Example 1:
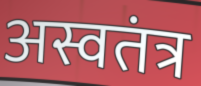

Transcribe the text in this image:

अस्वतंत्र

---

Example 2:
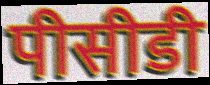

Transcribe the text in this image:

पीसीडी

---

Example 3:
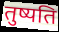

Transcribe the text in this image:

तुष्यति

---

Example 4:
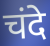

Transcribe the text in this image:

चंदे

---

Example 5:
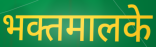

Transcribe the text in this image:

भक्तमालके